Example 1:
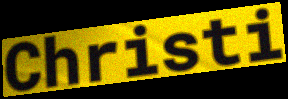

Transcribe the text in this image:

Christi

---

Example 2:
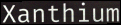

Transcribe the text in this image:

Xanthium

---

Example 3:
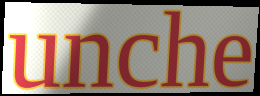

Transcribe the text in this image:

unche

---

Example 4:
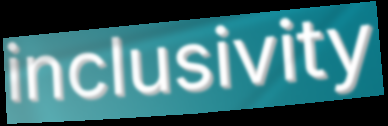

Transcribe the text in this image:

inclusivity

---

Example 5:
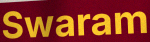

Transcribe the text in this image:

Swaram